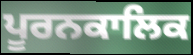
ਪੂਰਨਕਾਲਿਕ